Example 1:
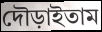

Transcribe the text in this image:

দৌড়াইতাম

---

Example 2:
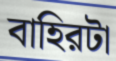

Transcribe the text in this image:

বাহিরটা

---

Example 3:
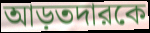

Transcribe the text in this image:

আড়তদারকে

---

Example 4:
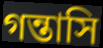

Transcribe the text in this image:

গন্তাসি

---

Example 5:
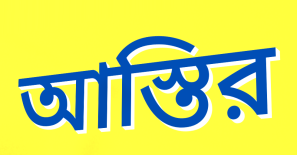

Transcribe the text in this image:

আস্তির